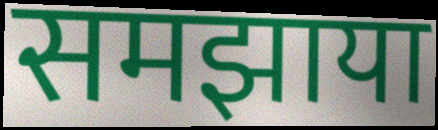
समझाया